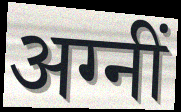
अग्नीं